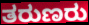
ತರುಣರು